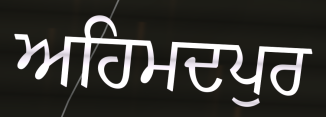
ਅਹਿਮਦਪੁਰ